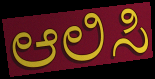
ಆಲಿಸಿ